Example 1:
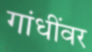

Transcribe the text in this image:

गांधींवर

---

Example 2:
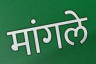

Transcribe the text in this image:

मांगले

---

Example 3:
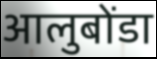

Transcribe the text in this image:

आलुबोंडा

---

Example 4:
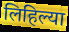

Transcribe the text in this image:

लिहिल्या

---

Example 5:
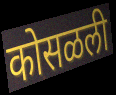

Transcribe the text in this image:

कोसळली